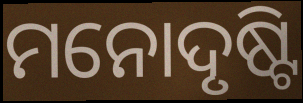
ମନୋଦୃଷ୍ଟି